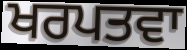
ਖਰਪਤਵਾ